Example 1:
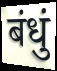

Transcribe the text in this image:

बंधुं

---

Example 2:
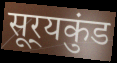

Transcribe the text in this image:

सूर्यकुंड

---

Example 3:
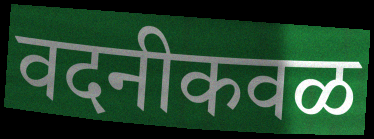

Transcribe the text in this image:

वदनीकवळ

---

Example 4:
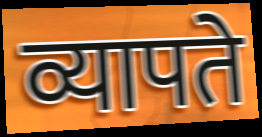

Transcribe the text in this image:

व्यापते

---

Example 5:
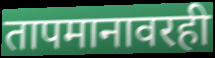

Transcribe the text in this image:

तापमानावरही